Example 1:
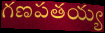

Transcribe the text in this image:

గణపతయ్య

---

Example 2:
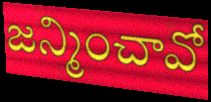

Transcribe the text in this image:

జన్మించావో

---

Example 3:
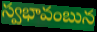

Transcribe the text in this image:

స్వభావంబున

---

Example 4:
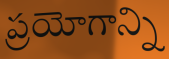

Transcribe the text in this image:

ప్రయోగాన్ని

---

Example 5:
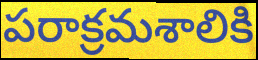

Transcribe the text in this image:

పరాక్రమశాలికి